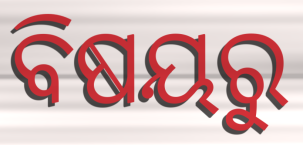
ବିଷୟରୁ